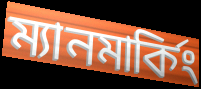
ম্যানমার্কিং